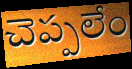
చెప్పలేం